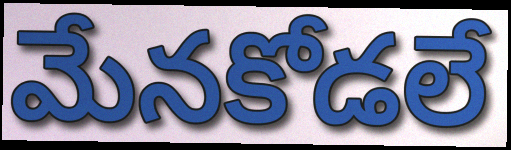
మేనకోడలే